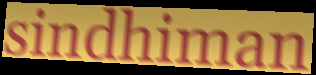
sindhiman